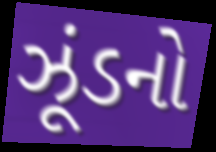
ઝૂંડનો